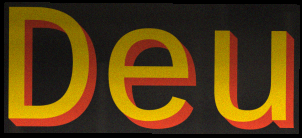
Deu